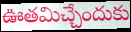
ఊతమిచ్చేందుకు